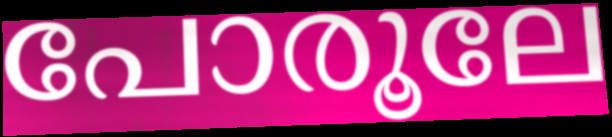
പോരൂലേ